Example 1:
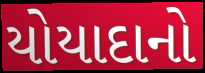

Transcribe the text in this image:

યોયાદાનો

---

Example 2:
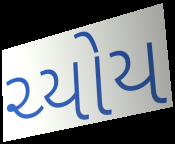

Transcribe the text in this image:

ચ્યોય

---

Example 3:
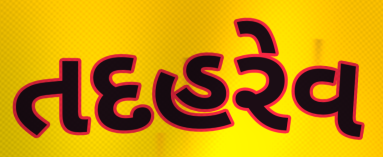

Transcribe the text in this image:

તદહરેવ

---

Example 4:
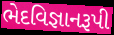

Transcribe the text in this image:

ભેદવિજ્ઞાનરૂપી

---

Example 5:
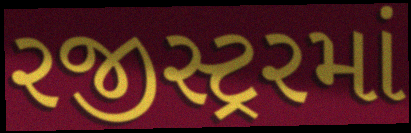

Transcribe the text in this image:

રજીસ્ટ્રરમાં